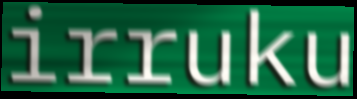
irruku